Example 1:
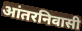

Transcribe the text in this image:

आंतरनिवासी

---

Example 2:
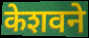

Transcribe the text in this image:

केशवने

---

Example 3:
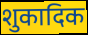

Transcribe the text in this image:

शुकादिक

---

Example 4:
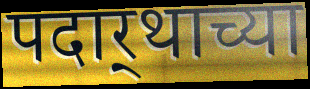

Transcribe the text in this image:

पदार्थाच्या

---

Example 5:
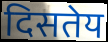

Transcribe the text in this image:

दिसतेय